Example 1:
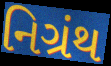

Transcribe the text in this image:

નિગ્રંથ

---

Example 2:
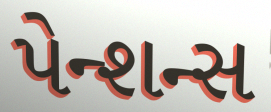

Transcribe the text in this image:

પેન્શન્સ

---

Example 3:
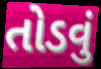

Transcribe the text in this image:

તોડવું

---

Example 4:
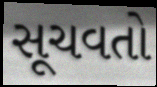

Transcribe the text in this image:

સૂચવતો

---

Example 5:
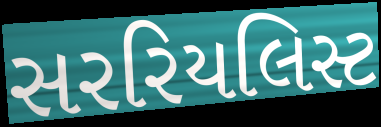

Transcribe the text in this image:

સરરિયલિસ્ટ